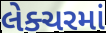
લેક્ચરમાં